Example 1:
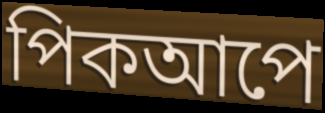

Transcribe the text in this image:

পিকআপে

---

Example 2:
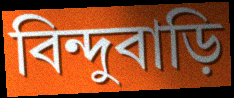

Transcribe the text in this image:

বিন্দুবাড়ি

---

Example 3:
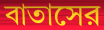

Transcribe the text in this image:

বাতাসের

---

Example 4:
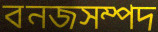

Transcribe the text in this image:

বনজসম্পদ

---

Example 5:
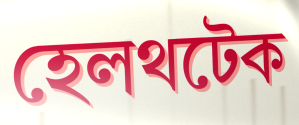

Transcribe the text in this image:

হেলথটেক